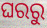
ଘରରୁ